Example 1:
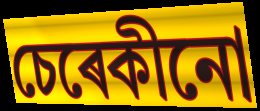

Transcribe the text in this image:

চেৰেকীনো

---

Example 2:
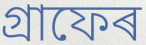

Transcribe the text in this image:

গ্ৰাফেৰ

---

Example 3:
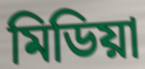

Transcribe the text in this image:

মিডিয়া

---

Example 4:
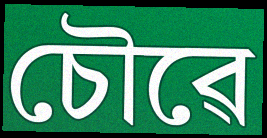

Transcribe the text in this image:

চৌৱে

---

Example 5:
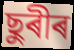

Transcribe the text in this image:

ছুৰীৰ